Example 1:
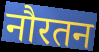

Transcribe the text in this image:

नौरतन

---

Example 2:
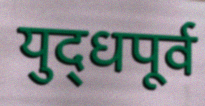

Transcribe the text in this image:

युद्धपूर्व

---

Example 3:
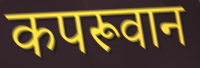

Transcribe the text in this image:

कपरूवान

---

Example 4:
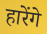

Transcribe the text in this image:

हारेंगे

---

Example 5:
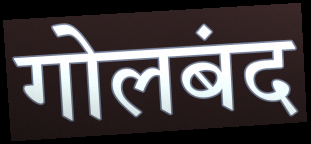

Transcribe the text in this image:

गोलबंद